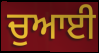
ਚੁਆਈ